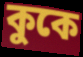
কুকে